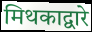
मिथकाद्वारे